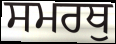
ਸਮਰਥੁ